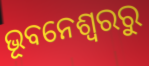
ଭୂବନେଶ୍ୱରରୁ